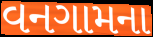
વનગામના